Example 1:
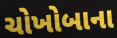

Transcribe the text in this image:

ચોખોબાના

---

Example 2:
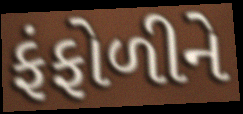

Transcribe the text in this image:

ફંફોળીને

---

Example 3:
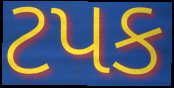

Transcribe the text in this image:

ટપક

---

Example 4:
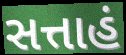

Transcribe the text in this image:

સત્તાહં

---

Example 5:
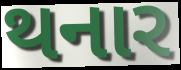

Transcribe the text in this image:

થનાર